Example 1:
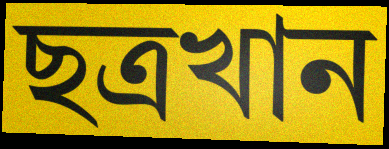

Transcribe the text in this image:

ছত্রখান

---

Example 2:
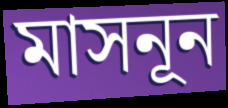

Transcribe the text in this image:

মাসনূন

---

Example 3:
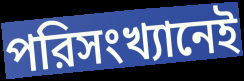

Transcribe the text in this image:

পরিসংখ্যানেই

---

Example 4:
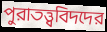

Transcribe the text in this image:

পুরাতত্ত্ববিদদের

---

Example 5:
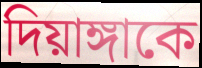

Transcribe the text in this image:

দিয়াঙ্গাকে